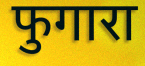
फुगारा